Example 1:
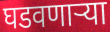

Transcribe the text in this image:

घडवणार्‍या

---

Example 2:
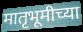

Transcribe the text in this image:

मातृभूमीच्या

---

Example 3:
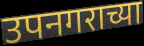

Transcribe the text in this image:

उपनगराच्या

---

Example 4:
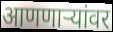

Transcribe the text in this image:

आणणाऱ्यांवर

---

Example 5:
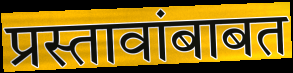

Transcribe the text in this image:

प्रस्तावांबाबत